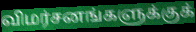
விமர்சனங்களுக்குக்